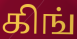
கிங்